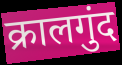
क्रालगुंद